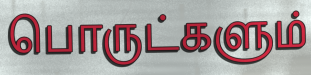
பொருட்களும்